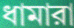
ধামারা